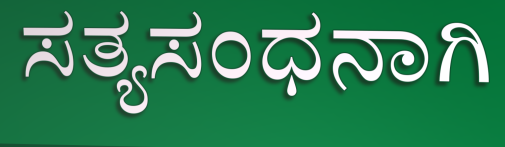
ಸತ್ಯಸಂಧನಾಗಿ